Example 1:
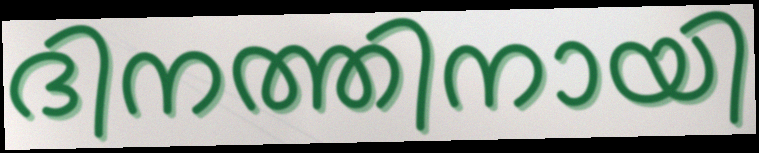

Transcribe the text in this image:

ദിനത്തിനായി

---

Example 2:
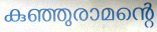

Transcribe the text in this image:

കുഞ്ഞുരാമന്റെ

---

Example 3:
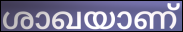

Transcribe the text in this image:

ശാഖയാണ്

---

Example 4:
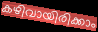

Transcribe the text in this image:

കഴിവായിരിക്കാം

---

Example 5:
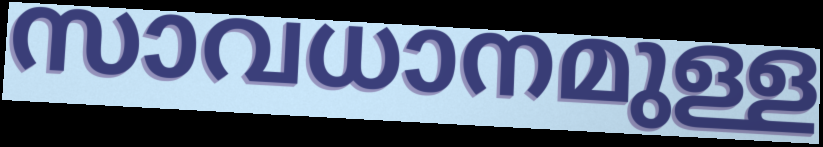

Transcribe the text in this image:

സാവധാനമുള്ള